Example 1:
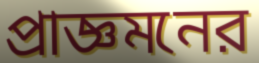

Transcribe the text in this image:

প্রাজ্ঞমনের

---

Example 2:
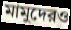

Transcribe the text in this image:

মামুদেরও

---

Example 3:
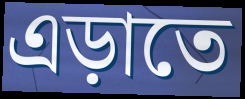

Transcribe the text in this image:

এড়াতে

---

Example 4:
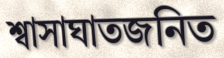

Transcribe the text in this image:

শ্বাসাঘাতজনিত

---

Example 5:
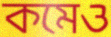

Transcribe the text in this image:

কমেও